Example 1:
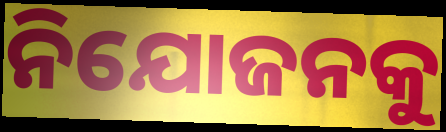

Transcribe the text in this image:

ନିଯୋଜନକୁ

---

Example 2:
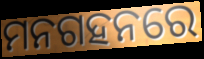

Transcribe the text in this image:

ମନଗହନରେ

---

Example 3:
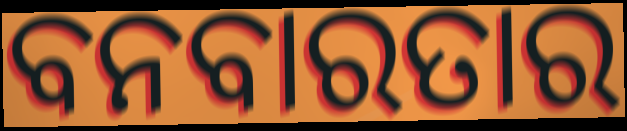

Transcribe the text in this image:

ବନବାରତାର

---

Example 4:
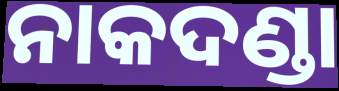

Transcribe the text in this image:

ନାକଦଣ୍ଡା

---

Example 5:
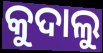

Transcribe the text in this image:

କୁଦାଲୁ